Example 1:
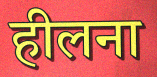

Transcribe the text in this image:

हीलना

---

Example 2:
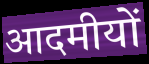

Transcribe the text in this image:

आदमीयों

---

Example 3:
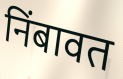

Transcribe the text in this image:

निंबावत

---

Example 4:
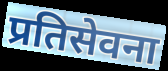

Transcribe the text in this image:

प्रतिसेवना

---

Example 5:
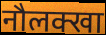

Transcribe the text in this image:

नौलक्खा